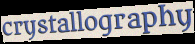
crystallography